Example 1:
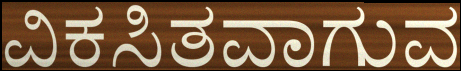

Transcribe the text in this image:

ವಿಕಸಿತವಾಗುವ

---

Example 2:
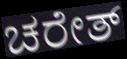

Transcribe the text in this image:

ಚರೇತ್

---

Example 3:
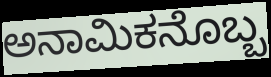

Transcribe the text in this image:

ಅನಾಮಿಕನೊಬ್ಬ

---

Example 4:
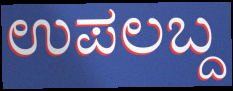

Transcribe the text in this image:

ಉಪಲಬ್ದ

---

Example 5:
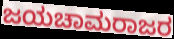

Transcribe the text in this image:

ಜಯಚಾಮರಾಜರ